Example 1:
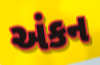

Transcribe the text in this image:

અંકન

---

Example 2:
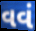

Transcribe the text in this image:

વવં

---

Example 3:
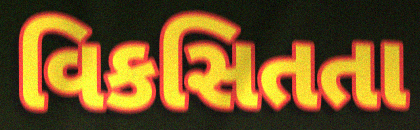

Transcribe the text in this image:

વિકસિતતા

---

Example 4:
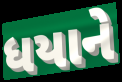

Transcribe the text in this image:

ધયાને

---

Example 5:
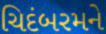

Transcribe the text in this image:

ચિદંબરમને